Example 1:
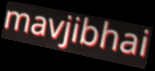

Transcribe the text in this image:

mavjibhai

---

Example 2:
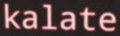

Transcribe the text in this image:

kalate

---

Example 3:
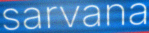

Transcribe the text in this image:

sarvana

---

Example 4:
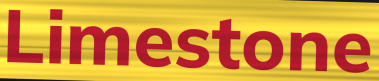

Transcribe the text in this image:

Limestone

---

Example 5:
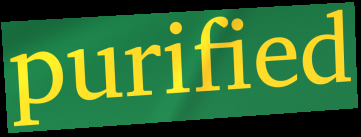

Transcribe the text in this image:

purified